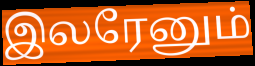
இலரேனும்